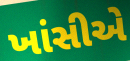
ખાંસીએ